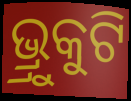
ଭ୍ର୍ରୁକୁଟି